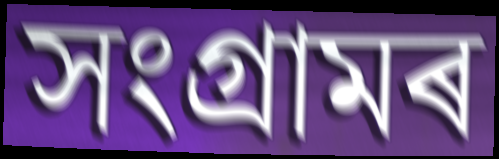
সংগ্ৰামৰ